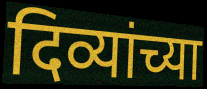
दिव्यांच्या